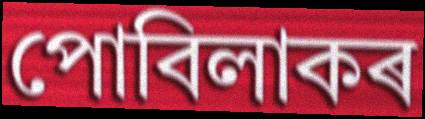
পোবিলাকৰ